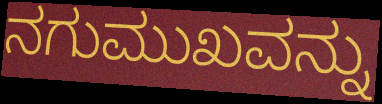
ನಗುಮುಖವನ್ನು